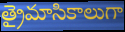
త్రైమాసికాలుగా